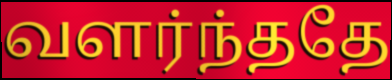
வளர்ந்ததே